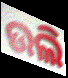
ଉଲି